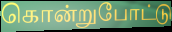
கொன்றுபோட்டு